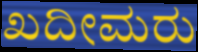
ಖದೀಮರು